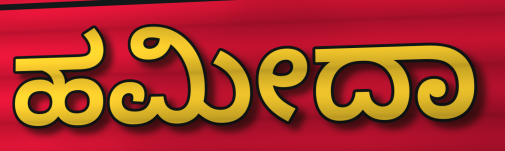
ಹಮೀದಾ